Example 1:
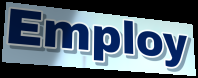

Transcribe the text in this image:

Employ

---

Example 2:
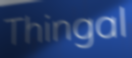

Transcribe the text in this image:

Thingal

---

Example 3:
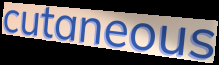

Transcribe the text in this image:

cutaneous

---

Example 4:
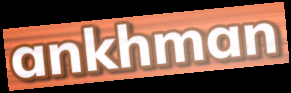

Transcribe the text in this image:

ankhman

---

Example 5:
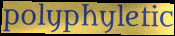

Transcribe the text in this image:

polyphyletic